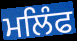
ਮਲਿੰਫ